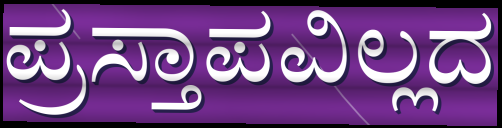
ಪ್ರಸ್ತಾಪವಿಲ್ಲದ